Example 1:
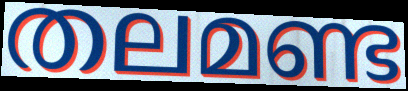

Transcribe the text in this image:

തലമണ്ട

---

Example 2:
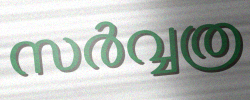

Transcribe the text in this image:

സർവ്വത്ര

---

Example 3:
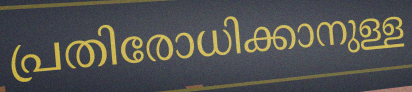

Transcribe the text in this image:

പ്രതിരോധിക്കാനുള്ള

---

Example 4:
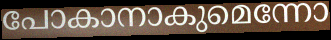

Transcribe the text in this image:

പോകാനാകുമെന്നോ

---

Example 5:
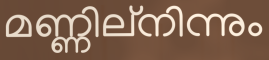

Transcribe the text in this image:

മണ്ണില്നിന്നും